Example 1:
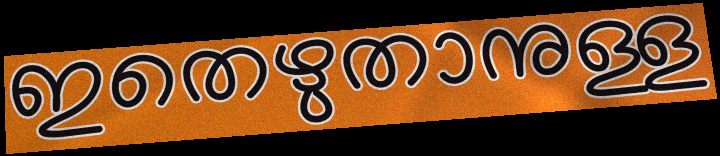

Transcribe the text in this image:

ഇതെഴുതാനുള്ള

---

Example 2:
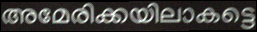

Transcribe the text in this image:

അമേരിക്കയിലാകട്ടെ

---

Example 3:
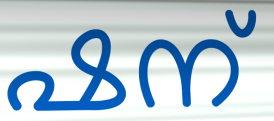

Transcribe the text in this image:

ഷന്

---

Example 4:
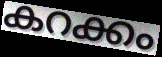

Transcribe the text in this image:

കറക്കം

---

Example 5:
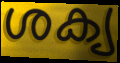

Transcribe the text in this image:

ശക്യ